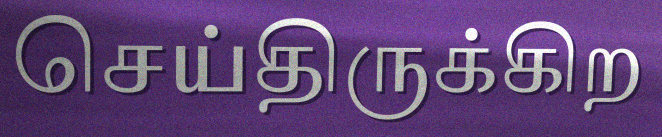
செய்திருக்கிற